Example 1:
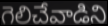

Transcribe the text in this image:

గెలిచేవాడిని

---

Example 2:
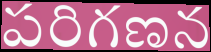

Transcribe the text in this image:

పరిగణన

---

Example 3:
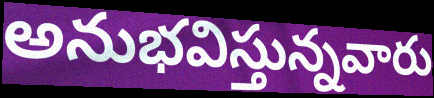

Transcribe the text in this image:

అనుభవిస్తున్నవారు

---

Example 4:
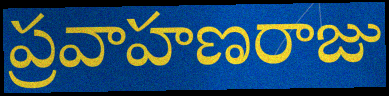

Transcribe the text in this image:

ప్రవాహణరాజు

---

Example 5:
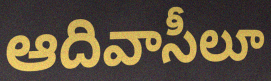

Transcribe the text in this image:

ఆదివాసీలూ